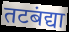
तटबंद्या